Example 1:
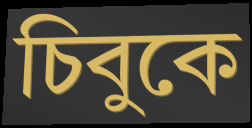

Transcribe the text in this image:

চিবুকে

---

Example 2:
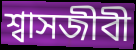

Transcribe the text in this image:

শ্বাসজীবী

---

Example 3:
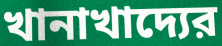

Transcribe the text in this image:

খানাখাদ্যের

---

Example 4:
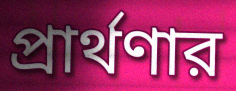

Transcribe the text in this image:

প্রার্থণার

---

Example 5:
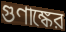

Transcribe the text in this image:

গুণাঙ্কের